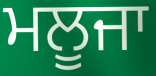
ਮਲੂਜਾ